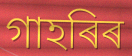
গাহৰিৰ